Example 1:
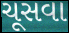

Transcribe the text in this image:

ચૂસવા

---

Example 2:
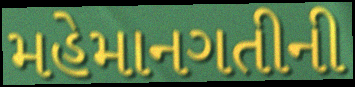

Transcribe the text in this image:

મહેમાનગતીની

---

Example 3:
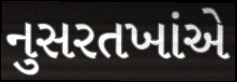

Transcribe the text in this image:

નુસરતખાંએ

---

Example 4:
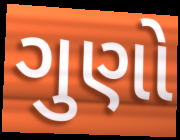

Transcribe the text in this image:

ગુણો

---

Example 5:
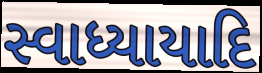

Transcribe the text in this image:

સ્વાધ્યાયાદિ